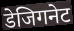
डेजिगनेट